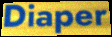
Diaper